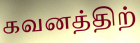
கவனத்திற்